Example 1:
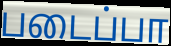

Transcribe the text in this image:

படைப்பா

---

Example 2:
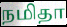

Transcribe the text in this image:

நமிதா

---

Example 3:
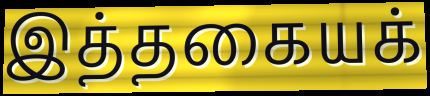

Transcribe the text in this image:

இத்தகையக்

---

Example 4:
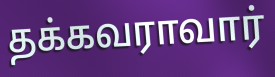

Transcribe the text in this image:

தக்கவராவார்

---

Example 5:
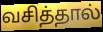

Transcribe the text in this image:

வசித்தால்